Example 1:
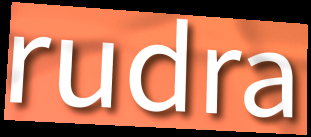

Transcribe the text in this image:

rudra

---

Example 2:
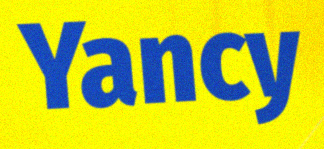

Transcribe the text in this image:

Yancy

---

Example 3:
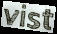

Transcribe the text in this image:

vist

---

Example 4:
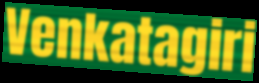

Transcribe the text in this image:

Venkatagiri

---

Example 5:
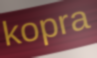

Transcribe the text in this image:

kopra